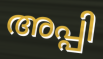
അപ്പി